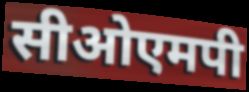
सीओएमपी